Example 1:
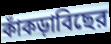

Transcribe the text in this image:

কাঁকড়াবিছের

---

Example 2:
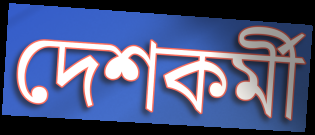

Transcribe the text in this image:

দেশকর্মী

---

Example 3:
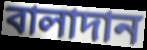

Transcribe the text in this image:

বালাদান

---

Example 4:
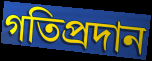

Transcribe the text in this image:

গতিপ্রদান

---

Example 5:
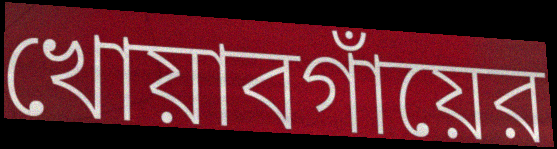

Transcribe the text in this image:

খোয়াবগাঁয়ের